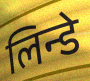
लिन्डे